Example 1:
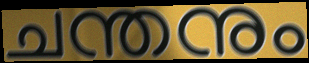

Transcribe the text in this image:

ചന്തനും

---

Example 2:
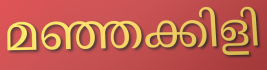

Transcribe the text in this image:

മഞ്ഞക്കിളി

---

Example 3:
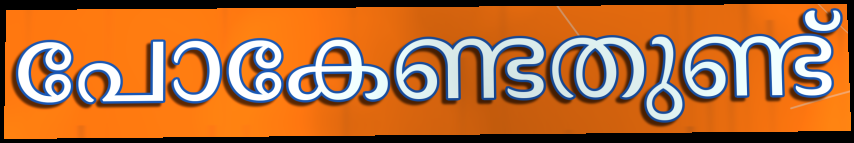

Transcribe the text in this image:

പോകേണ്ടതുണ്ട്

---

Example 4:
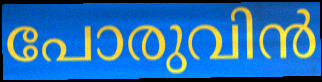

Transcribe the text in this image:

പോരുവിൻ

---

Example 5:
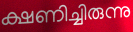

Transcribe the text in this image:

ക്ഷണിച്ചിരുന്നു